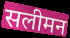
सलीमन